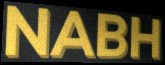
NABH